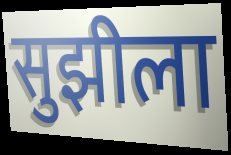
सुझीला